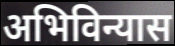
अभिविन्यास